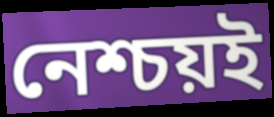
নেশ্চয়ই